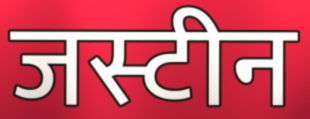
जस्टीन